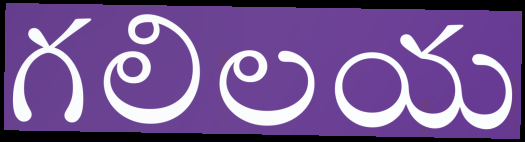
గలిలయ